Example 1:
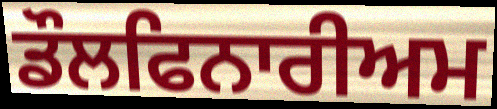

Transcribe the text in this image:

ਡੌਲਫਿਨਾਰੀਅਮ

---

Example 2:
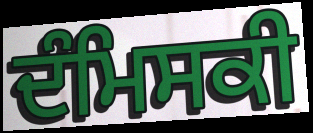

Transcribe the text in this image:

ਦੰਮਿਸਕੀ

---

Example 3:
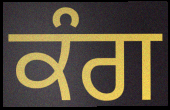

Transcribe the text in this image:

ਕੰਗ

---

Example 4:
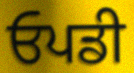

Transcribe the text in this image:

ਓਪਡੀ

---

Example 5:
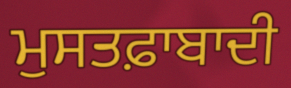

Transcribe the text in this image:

ਮੁਸਤਫ਼ਾਬਾਦੀ